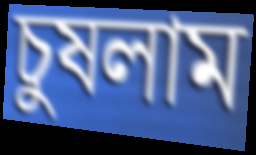
চুষলাম